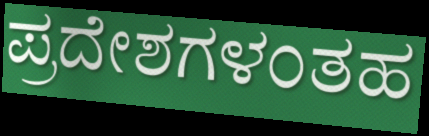
ಪ್ರದೇಶಗಳಂತಹ